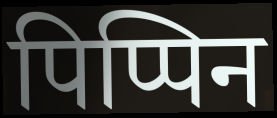
पिप्पिन